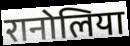
रानोलिया